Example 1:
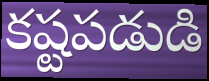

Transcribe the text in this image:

కష్టపడుడి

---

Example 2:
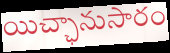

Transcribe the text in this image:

యిచ్ఛానుసారం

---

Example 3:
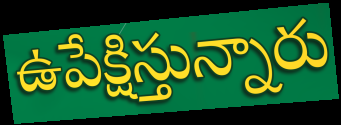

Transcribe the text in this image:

ఉపేక్షిస్తున్నారు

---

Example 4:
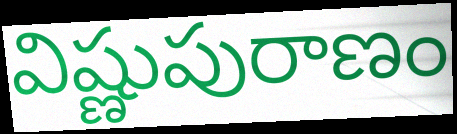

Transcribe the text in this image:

విష్ణుపురాణం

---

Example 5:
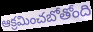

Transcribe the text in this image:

ఆక్రమించబోతోంది